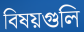
বিষয়গুলি